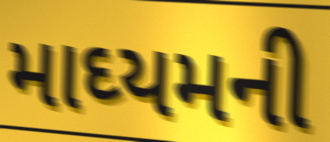
માઘ્યમની